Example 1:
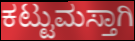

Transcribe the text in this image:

ಕಟ್ಟುಮಸ್ತಾಗಿ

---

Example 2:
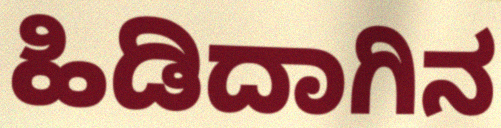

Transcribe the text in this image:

ಹಿಡಿದಾಗಿನ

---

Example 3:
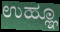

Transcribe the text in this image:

ಉಹ್ಞೂ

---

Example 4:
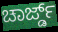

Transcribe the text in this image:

ಚಾರ್ಜ್ಡ್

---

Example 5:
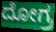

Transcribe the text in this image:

ದೋಗ್ರ